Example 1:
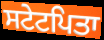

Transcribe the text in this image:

ਸਟੇਟਪਿਤਾ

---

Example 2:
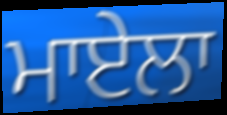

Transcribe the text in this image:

ਮਾਏਲਾ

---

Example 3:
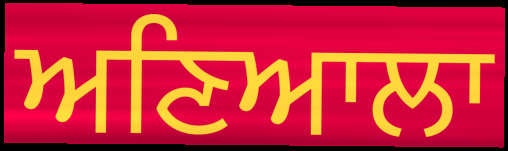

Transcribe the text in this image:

ਅਣਿਆਲਾ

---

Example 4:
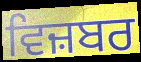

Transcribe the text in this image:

ਵਿਜ਼ਬਰ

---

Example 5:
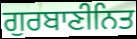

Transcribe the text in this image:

ਗੁਰਬਾਣੀਨਿਤ